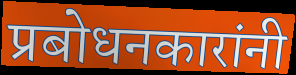
प्रबोधनकारांनी